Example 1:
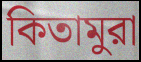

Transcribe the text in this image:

কিতামুরা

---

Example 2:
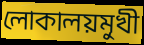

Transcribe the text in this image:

লোকালয়মুখী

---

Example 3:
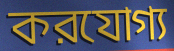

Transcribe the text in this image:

করযোগ্য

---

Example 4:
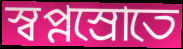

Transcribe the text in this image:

স্বপ্নস্রোতে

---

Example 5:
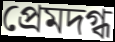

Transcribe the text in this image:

প্রেমদগ্ধ